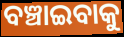
ବଞ୍ଚାଇବାକୁ